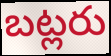
బట్లరు